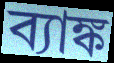
ব্যাঙ্ক